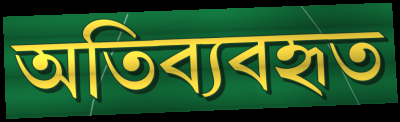
অতিব্যবহৃত